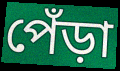
পেঁড়া